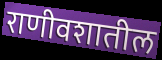
राणीवशातील